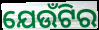
ଯେଉଁଟିର